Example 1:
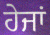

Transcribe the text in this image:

ਹੇਜਾਂ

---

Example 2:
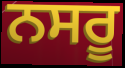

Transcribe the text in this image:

ਨਸਰੂ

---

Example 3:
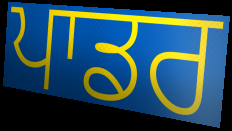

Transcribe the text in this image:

ਪਾਡਰ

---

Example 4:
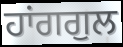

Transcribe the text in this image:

ਹਾਂਗਗੁਲ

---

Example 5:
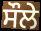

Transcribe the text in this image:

ਸੌਲੇ